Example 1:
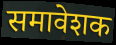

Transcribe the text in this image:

समावेशक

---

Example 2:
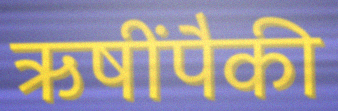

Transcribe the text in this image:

ऋषींपैकी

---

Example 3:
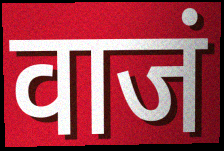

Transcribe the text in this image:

वाजं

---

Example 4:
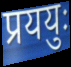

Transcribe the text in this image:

प्रययुः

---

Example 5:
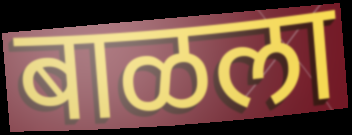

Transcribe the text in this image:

बाळला